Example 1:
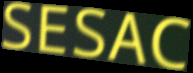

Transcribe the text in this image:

SESAC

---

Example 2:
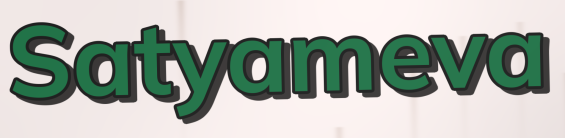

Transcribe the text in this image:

Satyameva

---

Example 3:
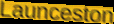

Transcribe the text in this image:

Launceston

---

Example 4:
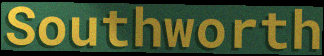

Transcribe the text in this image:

Southworth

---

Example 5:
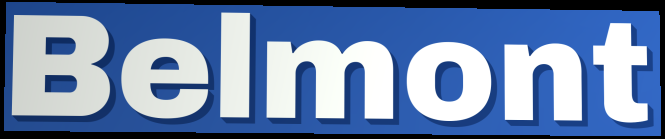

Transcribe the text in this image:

Belmont